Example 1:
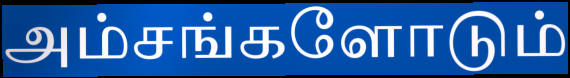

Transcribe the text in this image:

அம்சங்களோடும்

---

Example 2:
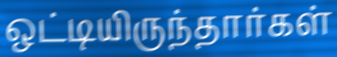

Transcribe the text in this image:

ஒட்டியிருந்தார்கள்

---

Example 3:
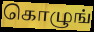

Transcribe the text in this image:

கொழுங்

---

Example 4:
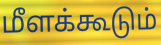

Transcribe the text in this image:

மீளக்கூடும்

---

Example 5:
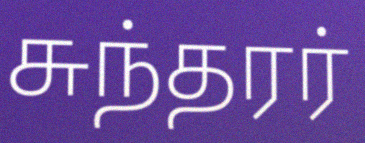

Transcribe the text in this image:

சுந்தரர்